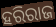
ହରିରାଜ